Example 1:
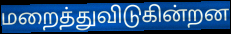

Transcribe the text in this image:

மறைத்துவிடுகின்றன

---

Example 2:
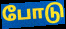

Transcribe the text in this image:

போடு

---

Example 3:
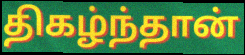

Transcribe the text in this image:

திகழ்ந்தான்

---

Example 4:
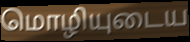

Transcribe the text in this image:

மொழியுடைய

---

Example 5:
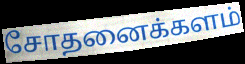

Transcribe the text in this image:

சோதனைக்களம்